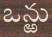
ఒన్ఱు